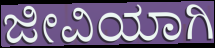
ಜೀವಿಯಾಗಿ